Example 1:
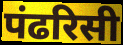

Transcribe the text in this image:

पंढरिसी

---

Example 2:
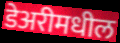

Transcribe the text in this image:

डेअरीमधील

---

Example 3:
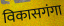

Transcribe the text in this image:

विकासगंगा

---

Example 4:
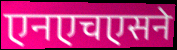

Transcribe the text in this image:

एनएचएसने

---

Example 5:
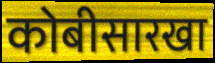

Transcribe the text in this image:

कोबीसारखा